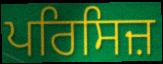
ਪਰਿਸਿਜ਼